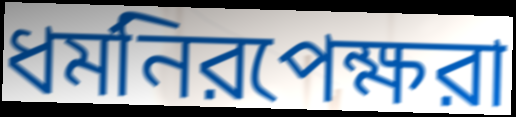
ধর্মনিরপেক্ষরা